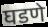
घडणे